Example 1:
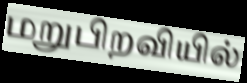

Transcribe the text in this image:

மறுபிறவியில்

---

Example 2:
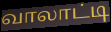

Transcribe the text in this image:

வாலாட்டி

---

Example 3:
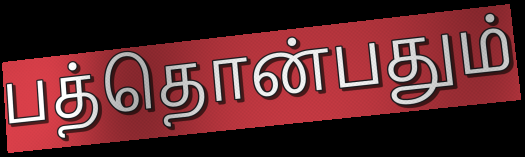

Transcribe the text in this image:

பத்தொன்பதும்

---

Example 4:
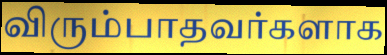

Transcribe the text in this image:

விரும்பாதவர்களாக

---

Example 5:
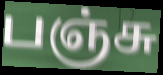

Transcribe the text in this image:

பஞ்சு